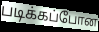
படிக்கப்போன